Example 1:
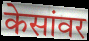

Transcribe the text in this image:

केसांवर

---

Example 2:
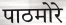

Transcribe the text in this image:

पाठमोरे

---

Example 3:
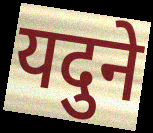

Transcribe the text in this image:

यदुने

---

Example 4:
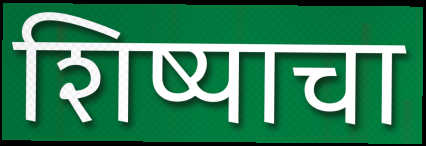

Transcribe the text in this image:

शिष्याचा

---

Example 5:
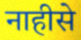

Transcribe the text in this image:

नाहीसे